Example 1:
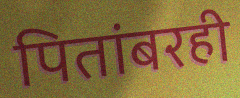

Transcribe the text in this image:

पितांबरही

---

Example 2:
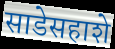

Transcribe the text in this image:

साडेसहाशे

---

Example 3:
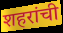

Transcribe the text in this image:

शहरांची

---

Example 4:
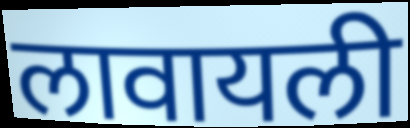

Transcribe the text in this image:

लावायली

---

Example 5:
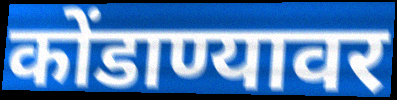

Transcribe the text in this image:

कोंडाण्यावर